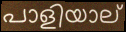
പാളിയാല്